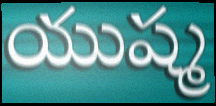
యుష్మ